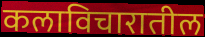
कलाविचारातील